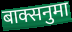
बाक्सनुमा